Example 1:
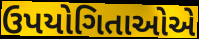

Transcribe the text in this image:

ઉપયોગિતાઓએ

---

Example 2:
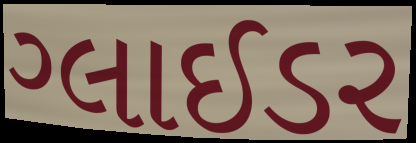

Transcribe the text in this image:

ગ્લાઈડર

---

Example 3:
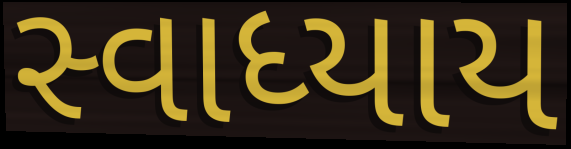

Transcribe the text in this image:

સ્વાધ્યાય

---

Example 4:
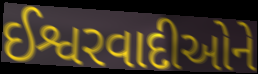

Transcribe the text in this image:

ઈશ્વરવાદીઓને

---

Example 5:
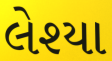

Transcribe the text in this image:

લેશ્યા